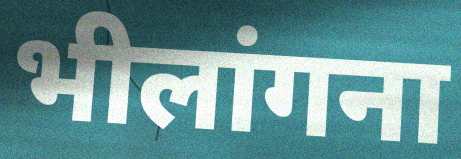
भीलांगना